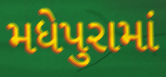
મધેપુરામાં